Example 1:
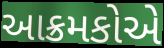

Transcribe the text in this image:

આક્રમકોએ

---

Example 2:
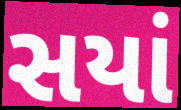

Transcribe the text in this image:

સયાં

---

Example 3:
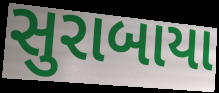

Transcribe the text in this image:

સુરાબાયા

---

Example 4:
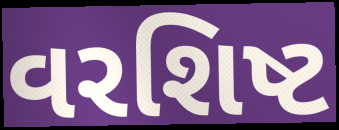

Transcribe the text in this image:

વરશિષ્ટ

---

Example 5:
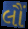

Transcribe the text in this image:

લૌં